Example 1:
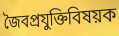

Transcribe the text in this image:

জৈবপ্রযুক্তিবিষয়ক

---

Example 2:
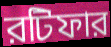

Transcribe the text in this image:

রটিফার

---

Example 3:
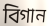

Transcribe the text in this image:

বিগান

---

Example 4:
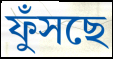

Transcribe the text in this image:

ফুঁসছে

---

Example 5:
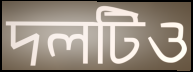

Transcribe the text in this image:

দলটিও